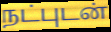
நட்புடன்